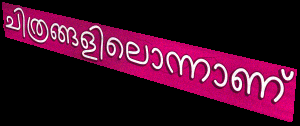
ചിത്രങ്ങളിലൊന്നാണ്